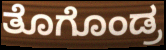
ತೊಗೊಂಡ್ರ